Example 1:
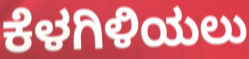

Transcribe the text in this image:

ಕೆಳಗಿಳಿಯಲು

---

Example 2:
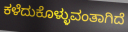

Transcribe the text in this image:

ಕಳೆದುಕೊಳ್ಳುವಂತಾಗಿದೆ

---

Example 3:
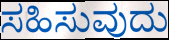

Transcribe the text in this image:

ಸಹಿಸುವುದು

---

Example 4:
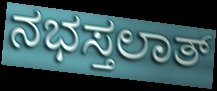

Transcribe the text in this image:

ನಭಸ್ತಲಾತ್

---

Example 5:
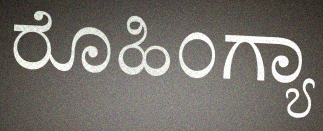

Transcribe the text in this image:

ರೊಹಿಂಗ್ಯಾ